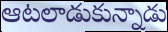
ఆటలాడుకున్నాడు